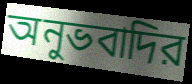
অনুভবাদির